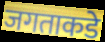
जगताकडे